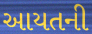
આયતની